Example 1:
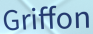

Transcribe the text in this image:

Griffon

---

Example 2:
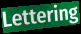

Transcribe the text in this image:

Lettering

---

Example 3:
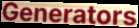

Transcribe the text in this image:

Generators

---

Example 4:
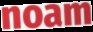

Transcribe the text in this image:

noam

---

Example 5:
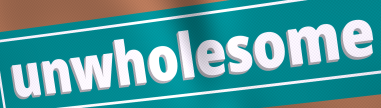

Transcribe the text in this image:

unwholesome